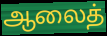
ஆலைத்